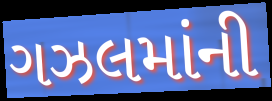
ગઝલમાંની